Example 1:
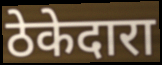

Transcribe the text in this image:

ठेकेदारा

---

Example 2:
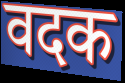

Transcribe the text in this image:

वदक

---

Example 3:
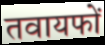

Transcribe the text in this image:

तवायफों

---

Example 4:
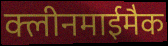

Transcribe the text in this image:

क्लीनमाईमैक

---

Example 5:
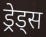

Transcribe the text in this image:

ड्रेड्स